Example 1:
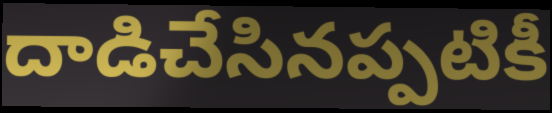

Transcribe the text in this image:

దాడిచేసినప్పటికీ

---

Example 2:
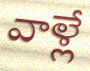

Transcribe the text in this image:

వాళ్లే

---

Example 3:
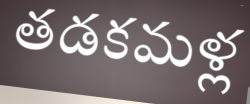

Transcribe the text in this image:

తడకమళ్ల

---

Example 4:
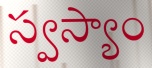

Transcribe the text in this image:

స్వస్యాం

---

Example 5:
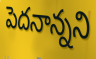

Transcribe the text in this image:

పెదనాన్నని